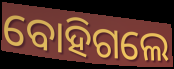
ବୋହିଗଲେ